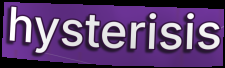
hysterisis